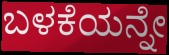
ಬಳಕೆಯನ್ನೇ